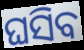
ଘସିବ